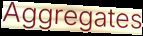
Aggregates